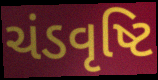
ચંડવૃષ્ટિ